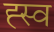
ह्स्व